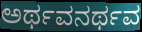
ಅರ್ಥವನರ್ಥವ